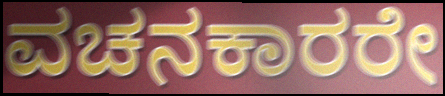
ವಚನಕಾರರೇ